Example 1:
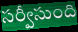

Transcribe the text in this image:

సర్వీసుంది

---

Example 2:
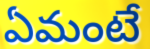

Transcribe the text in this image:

ఏమంటే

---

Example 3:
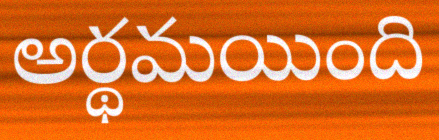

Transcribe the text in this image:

అర్థమయింది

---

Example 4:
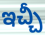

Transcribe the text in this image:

ఇచ్చీ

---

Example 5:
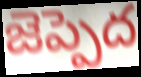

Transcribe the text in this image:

జెప్పెద